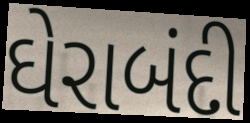
ઘેરાબંદી